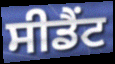
ਸੀਡੈਂਟ